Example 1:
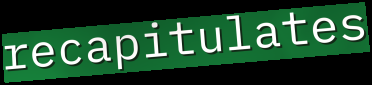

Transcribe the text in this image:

recapitulates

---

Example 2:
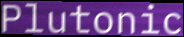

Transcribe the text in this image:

Plutonic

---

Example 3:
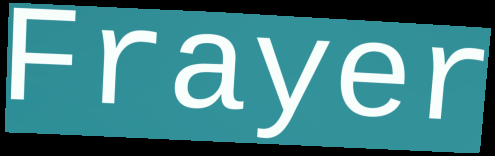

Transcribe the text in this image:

Frayer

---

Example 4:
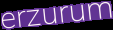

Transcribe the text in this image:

erzurum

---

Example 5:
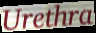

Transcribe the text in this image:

Urethra